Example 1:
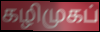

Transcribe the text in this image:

கழிமுகப்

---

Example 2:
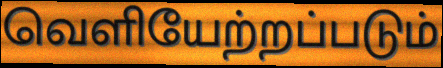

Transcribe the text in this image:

வெளியேற்றப்படும்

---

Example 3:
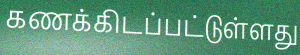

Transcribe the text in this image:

கணக்கிடப்பட்டுள்ளது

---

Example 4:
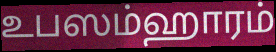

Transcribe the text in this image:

உபஸம்ஹாரம்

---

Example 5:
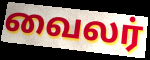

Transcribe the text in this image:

வைலர்